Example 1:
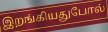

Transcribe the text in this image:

இறங்கியதுபோல்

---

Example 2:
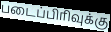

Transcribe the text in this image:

படைப்பிரிவுக்கு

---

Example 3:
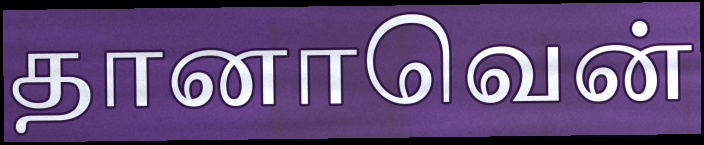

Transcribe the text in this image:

தானாவென்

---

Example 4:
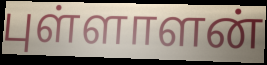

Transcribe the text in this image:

புள்ளாளன்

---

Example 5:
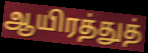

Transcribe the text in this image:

ஆயிரத்துத்